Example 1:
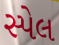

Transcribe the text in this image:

સ્પેલ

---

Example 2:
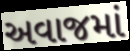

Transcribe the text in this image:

અવાજમાં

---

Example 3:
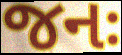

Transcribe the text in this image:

જનઃ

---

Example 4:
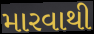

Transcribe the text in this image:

મારવાથી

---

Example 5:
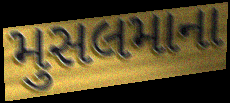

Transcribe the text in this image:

મુસલમાના